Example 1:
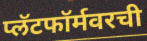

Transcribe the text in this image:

प्लॅटफॉर्मवरची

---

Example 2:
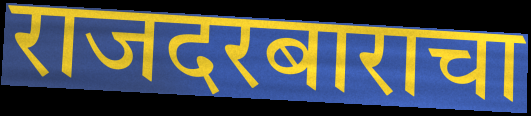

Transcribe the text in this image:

राजदरबाराचा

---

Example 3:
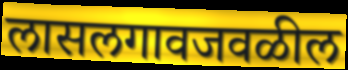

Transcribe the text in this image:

लासलगावजवळील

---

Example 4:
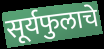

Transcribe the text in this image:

सूर्यफुलाचे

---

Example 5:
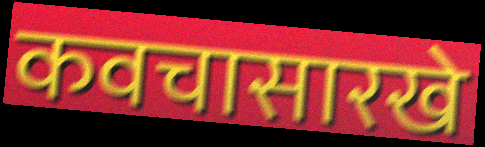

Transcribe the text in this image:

कवचासारखे